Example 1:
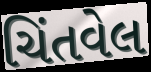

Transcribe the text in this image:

ચિંતવેલ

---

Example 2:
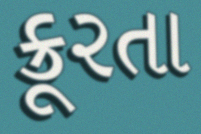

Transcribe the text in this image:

ક્રૂરતા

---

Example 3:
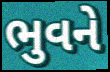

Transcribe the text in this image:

ભુવને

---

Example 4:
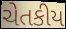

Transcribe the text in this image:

ચેતકીય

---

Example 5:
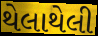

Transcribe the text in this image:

થેલાથેલી